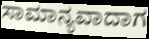
ಸಾಮಾನ್ಯವಾದಾಗ